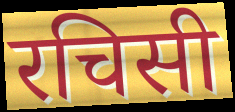
रचिसी